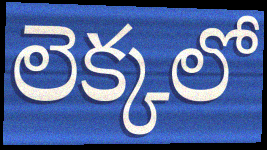
లెక్కలో